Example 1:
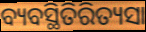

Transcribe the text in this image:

ବ୍ୟବସ୍ଥିତିରିତ୍ୟସା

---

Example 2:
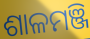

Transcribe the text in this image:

ଶାଳମଞ୍ଜି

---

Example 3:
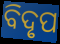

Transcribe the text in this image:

ବିଦୃପ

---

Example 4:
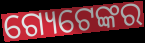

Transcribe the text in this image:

ଗ୍ୟେଟେଙ୍କର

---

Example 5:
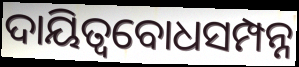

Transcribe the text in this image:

ଦାୟିତ୍ୱବୋଧସମ୍ପନ୍ନ